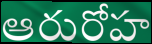
ఆరురోహ